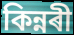
কিন্নৰী